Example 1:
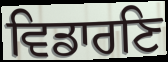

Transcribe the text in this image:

ਵਿਡਾਰਣਿ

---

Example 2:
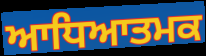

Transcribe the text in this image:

ਆਧਿਆਤਮਕ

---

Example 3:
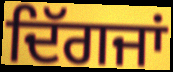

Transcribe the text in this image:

ਦਿੱਗਜਾਂ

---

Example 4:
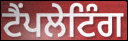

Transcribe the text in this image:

ਟੈਂਪਲੇਟਿੰਗ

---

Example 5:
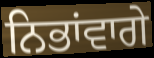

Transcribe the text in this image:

ਨਿਭਾਂਵਾਗੇ